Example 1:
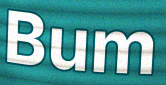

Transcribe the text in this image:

Bum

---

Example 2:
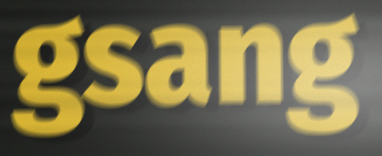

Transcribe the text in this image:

gsang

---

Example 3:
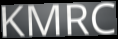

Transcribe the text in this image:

KMRC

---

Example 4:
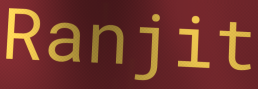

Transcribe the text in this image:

Ranjit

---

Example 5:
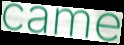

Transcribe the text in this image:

came